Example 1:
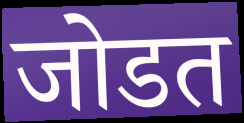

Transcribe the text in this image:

जोडत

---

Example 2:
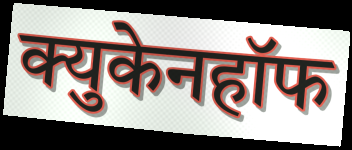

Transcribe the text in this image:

क्युकेनहॉफ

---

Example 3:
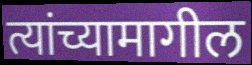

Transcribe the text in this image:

त्यांच्यामागील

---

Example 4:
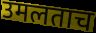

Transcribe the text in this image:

उमलताच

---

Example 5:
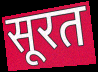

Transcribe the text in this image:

सूरत